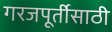
गरजपूर्तीसाठी